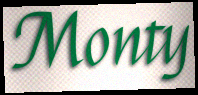
Monty